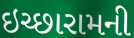
ઇચ્છારામની